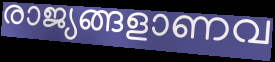
രാജ്യങ്ങളാണവ